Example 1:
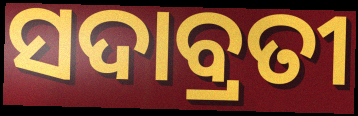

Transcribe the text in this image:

ସଦାବ୍ରତୀ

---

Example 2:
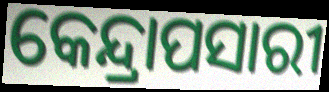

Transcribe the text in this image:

କେନ୍ଦ୍ରାପସାରୀ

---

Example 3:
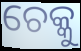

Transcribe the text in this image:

ଚେକ୍କୁ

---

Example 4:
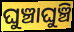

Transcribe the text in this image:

ଘୁଞ୍ଚାଘୁଞ୍ଚି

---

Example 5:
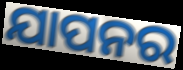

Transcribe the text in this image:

ଯାପନର